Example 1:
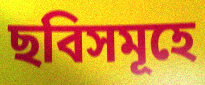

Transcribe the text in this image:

ছবিসমূহে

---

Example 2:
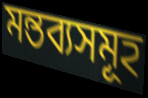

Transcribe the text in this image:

মন্তব্যসমূহ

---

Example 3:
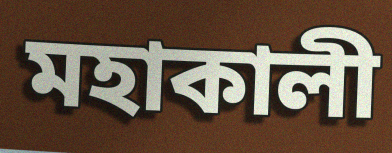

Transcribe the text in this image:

মহাকালী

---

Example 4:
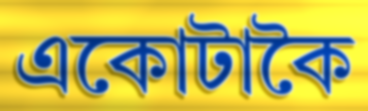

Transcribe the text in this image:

একোটাকৈ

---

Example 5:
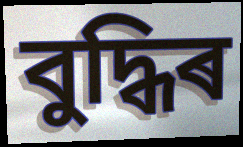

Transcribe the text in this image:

বুদ্ধিৰ